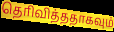
தெரிவித்ததாகவும்